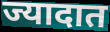
ज्यादात